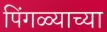
पिंगळ्याच्या